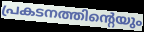
പ്രകടനത്തിന്റെയും